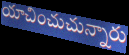
యాచించుచున్నారు